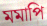
মমাপি